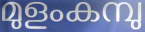
മുളംകമ്പു